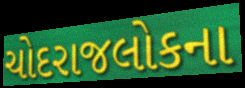
ચોદરાજલોકના